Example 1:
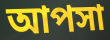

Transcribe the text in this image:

আপসা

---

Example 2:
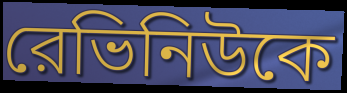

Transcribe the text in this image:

রেভিনিউকে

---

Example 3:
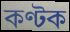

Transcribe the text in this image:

কণ্টক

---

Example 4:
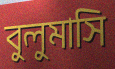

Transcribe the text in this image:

বুলুমাসি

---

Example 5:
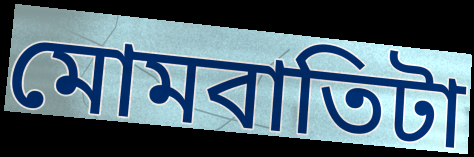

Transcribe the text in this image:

মোমবাতিটা